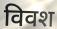
विवश